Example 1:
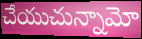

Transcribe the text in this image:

చేయుచున్నామో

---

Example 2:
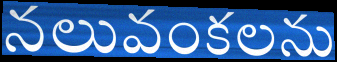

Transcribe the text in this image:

నలువంకలను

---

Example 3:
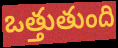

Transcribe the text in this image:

ఒత్తుతుంది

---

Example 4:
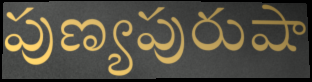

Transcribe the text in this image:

పుణ్యపురుషా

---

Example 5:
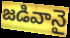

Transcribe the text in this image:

జడివానై